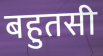
बहुतसी